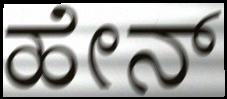
ಹೇನ್